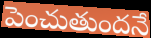
పెంచుతుందనే